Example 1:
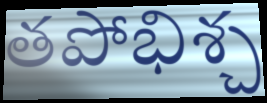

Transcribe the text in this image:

తపోభిశ్చ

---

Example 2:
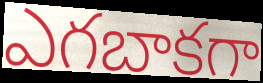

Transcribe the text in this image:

ఎగబాకగా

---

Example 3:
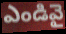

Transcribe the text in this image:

ఎండివై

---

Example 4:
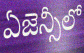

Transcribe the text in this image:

ఏజెన్సీలో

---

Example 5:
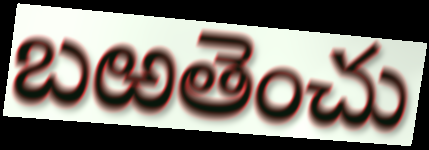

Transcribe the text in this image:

బఱతెంచు